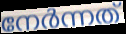
നേർന്നത്